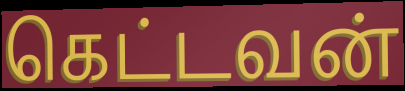
கெட்டவன்